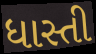
ધાસ્તી